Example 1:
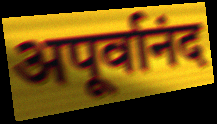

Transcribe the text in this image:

अपूर्वानंद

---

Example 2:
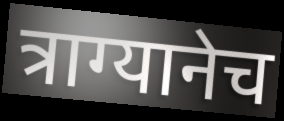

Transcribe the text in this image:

त्राग्यानेच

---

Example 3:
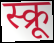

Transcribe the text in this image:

स्क्रू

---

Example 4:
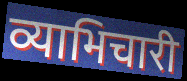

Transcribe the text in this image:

व्याभिचारी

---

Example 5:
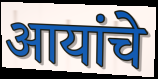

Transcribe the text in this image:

आयांचे